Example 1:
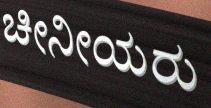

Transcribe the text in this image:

ಚೀನೀಯರು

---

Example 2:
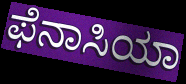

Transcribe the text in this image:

ಫೆನಾಸಿಯಾ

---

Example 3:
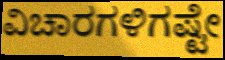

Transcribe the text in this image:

ವಿಚಾರಗಳಿಗಷ್ಟೇ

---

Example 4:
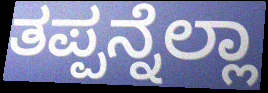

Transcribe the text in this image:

ತಪ್ಪನ್ನೆಲ್ಲಾ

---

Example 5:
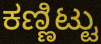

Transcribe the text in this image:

ಕಣ್ಣಿಟ್ಟು